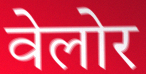
वेलोर